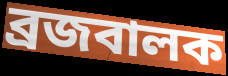
ব্রজবালক